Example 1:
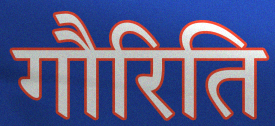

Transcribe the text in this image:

गौरिति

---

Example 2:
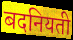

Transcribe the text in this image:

बदनियती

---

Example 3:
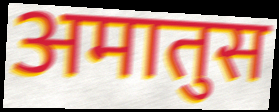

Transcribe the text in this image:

अमातुस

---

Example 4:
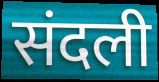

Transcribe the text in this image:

संदली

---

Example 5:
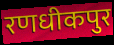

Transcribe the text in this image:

रणधीकपुर